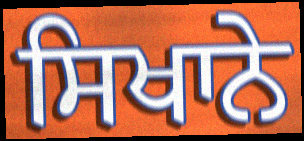
ਸਿਖਾਨੇ